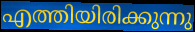
എത്തിയിരിക്കുന്നു